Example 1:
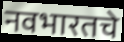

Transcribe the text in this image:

नवभारतचे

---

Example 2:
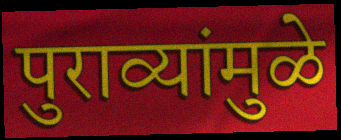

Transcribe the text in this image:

पुराव्यांमुळे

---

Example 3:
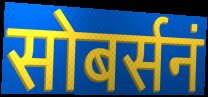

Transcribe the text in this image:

सोबर्सनं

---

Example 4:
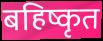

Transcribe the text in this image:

बहिष्कृत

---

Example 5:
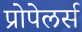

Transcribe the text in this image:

प्रोपेलर्स